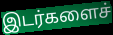
இடர்களைச்